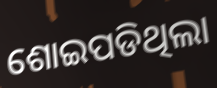
ଶୋଇପଡିଥିଲା